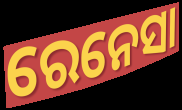
ରେନେସା